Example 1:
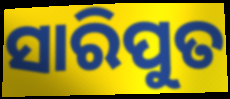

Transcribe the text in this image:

ସାରିପୁତ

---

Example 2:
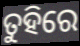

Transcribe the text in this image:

ତୁହିରେ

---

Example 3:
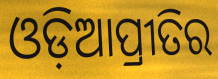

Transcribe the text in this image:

ଓଡ଼ିଆପ୍ରୀତିର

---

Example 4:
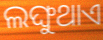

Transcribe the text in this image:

ଲଙ୍ଘୁଥାଏ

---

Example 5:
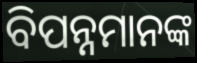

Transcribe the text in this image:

ବିପନ୍ନମାନଙ୍କ